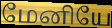
மேனியே